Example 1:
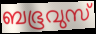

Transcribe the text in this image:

ബഭൂവുസ്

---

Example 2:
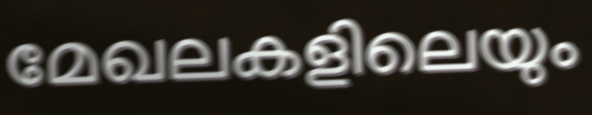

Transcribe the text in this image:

മേഖലകളിലെയും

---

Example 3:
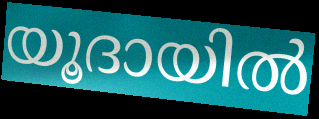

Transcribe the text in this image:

യൂദായിൽ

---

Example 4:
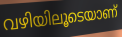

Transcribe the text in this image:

വഴിയിലൂടെയാണ്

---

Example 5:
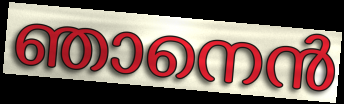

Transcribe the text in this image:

ഞാനെൻ